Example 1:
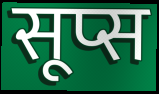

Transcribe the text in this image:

सूप्स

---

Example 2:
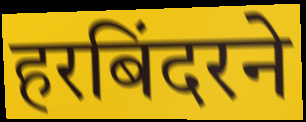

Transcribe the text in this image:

हरबिंदरने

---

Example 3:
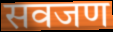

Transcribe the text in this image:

सवजण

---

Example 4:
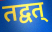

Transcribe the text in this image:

तद्वत्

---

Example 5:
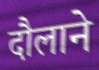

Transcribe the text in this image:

दौलाने